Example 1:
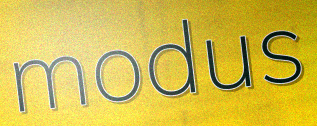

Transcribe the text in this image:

modus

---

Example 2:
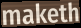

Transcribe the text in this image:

maketh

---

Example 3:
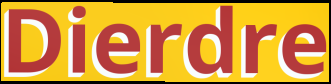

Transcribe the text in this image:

Dierdre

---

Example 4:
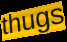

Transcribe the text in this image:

thugs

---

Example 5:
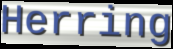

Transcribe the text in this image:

Herring